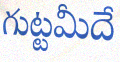
గుట్టమీదే